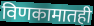
विणकामातही